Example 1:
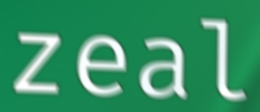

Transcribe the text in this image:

zeal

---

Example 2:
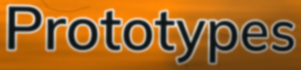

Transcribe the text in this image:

Prototypes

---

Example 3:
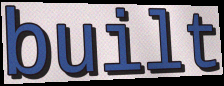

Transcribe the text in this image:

built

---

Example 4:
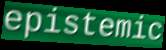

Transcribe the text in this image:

epistemic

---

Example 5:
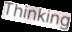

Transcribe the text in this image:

Thinking